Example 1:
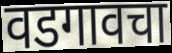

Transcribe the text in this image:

वडगावचा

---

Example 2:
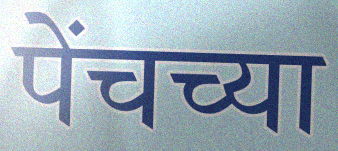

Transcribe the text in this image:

पेंचच्या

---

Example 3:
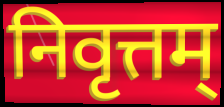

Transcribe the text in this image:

निवृत्तम्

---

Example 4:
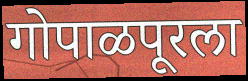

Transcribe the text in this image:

गोपाळपूरला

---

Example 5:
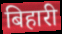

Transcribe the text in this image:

बिहारी